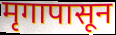
मृगापासून